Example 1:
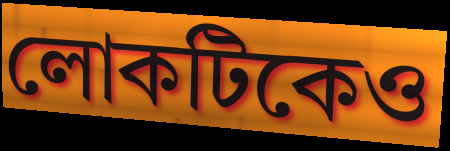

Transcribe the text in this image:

লোকটিকেও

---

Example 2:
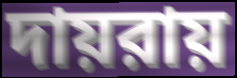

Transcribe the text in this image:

দায়রায়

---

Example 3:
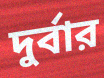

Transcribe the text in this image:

দুর্বার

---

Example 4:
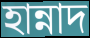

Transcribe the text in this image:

হান্নাদ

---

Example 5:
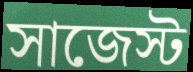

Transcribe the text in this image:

সাজেস্ট